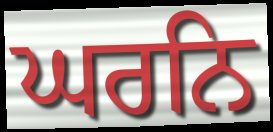
ਘਰਨਿ